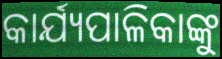
କାର୍ଯ୍ୟପାଳିକାଙ୍କୁ